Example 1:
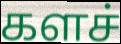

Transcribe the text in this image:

களச்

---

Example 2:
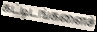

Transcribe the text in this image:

கட்டிடங்களைச்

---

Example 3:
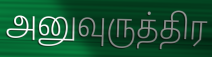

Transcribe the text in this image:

அனுவுருத்திர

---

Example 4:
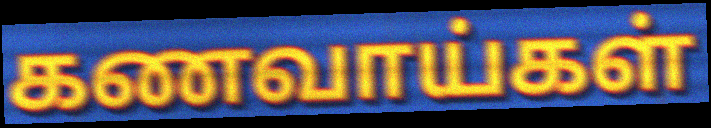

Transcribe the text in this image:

கணவாய்கள்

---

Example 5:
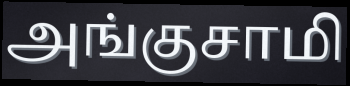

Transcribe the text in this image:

அங்குசாமி